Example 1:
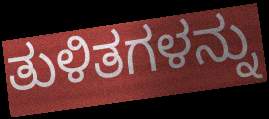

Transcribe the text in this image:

ತುಳಿತಗಳನ್ನು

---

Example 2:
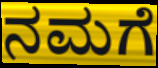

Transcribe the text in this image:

ನಮಗೆ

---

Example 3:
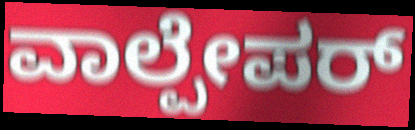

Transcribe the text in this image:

ವಾಲ್ಪೇಪರ್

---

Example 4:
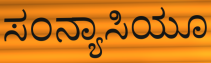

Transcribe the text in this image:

ಸಂನ್ಯಾಸಿಯೂ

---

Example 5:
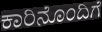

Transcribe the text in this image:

ಕಾರಿನೊಂದಿಗೆ